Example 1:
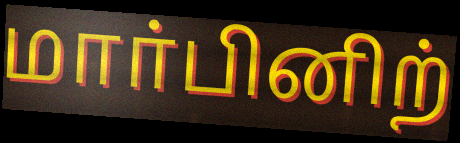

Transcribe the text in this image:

மார்பினிற்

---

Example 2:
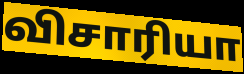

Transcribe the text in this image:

விசாரியா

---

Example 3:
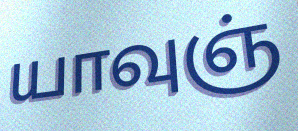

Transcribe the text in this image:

யாவுஞ்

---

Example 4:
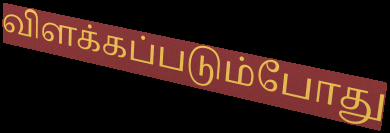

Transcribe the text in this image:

விளக்கப்படும்போது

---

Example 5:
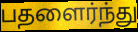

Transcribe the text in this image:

பதளைர்ந்து